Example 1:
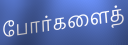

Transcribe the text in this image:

போர்களைத்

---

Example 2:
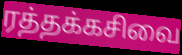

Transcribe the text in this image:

ரத்தக்கசிவை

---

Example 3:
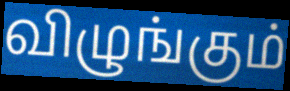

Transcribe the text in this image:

விழுங்கும்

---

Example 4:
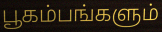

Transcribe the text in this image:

பூகம்பங்களும்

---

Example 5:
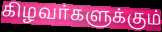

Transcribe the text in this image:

கிழவர்களுக்கும்